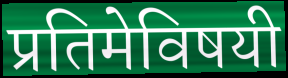
प्रतिमेविषयी